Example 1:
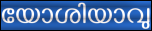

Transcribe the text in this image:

യോശിയാവു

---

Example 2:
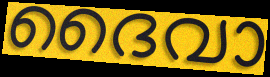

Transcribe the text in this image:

ദൈവാ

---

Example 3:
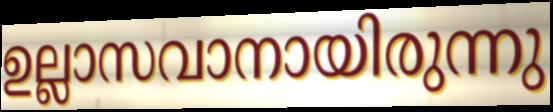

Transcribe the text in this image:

ഉല്ലാസവാനായിരുന്നു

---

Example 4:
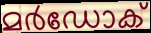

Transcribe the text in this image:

മർഡോക്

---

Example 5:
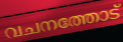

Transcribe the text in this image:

വചനത്തോട്